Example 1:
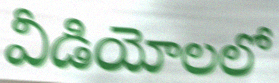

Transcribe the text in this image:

వీడియోలలో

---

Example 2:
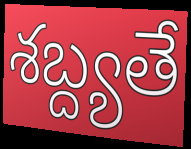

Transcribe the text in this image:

శబ్ద్యతే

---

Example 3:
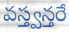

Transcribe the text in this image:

వస్త్వన్తరే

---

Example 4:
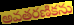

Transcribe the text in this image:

అవతరణికను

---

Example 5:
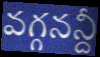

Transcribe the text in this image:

వగ్గనన్దీ